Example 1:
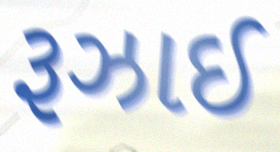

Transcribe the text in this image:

રૂઝાઈ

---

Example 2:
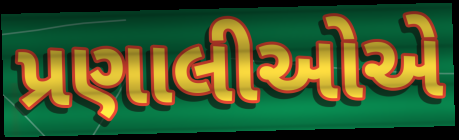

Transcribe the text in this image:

પ્રણાલીઓએ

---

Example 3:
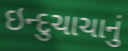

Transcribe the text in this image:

ઇન્દુચાચાનું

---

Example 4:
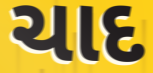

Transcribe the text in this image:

ચાદ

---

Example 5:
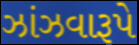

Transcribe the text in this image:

ઝાંઝવારૂપે